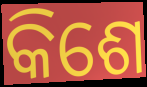
କିଶେ